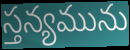
స్తన్యమును